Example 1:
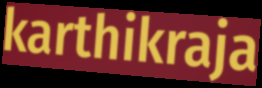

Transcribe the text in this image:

karthikraja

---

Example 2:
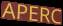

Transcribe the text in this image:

APERC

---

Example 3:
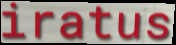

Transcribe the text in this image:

iratus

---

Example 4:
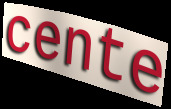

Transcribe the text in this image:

cente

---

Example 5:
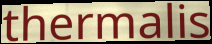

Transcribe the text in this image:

thermalis